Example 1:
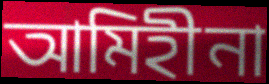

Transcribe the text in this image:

আমিহীনা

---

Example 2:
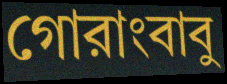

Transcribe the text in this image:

গোরাংবাবু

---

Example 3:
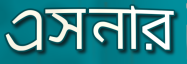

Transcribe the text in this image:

এসনার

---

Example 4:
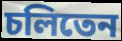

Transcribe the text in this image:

চলিতেন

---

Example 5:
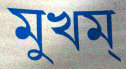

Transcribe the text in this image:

মুখম্